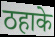
ठहाके